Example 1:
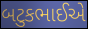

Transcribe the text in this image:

બટુકભાઈએ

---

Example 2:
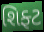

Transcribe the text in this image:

શિફ્ટ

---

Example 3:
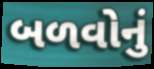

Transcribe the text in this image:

બળવોનું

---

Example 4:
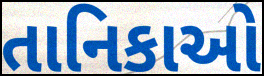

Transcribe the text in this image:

તાનિકાઓ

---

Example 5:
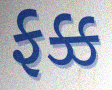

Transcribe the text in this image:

ફક્ક